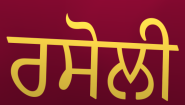
ਰਸੋਲੀ